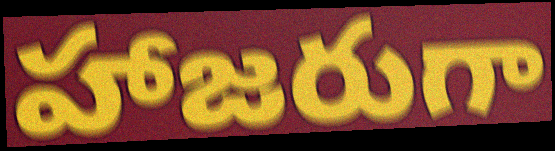
హాజరుగా